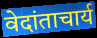
वेदांताचार्य